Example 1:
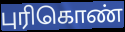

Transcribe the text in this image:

புரிகொண்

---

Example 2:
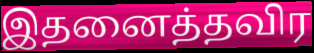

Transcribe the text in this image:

இதனைத்தவிர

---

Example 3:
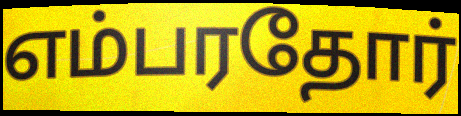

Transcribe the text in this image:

எம்பரதோர்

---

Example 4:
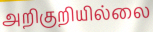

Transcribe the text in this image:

அறிகுறியில்லை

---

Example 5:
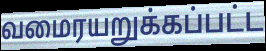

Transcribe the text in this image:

வமைரயறுக்கப்பட்ட